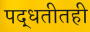
पद्धतीतही